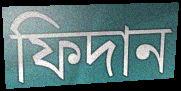
ফিদান